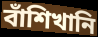
বাঁশিখানি